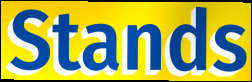
Stands